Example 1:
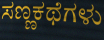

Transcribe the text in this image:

ಸಣ್ಣಕಥೆಗಳು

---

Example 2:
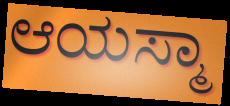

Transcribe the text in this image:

ಆಯಸ್ಮಾ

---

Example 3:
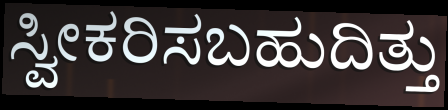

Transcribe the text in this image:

ಸ್ವೀಕರಿಸಬಹುದಿತ್ತು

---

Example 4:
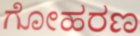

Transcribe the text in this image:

ಗೋಹರಣ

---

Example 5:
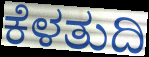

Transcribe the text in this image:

ಕೆಳತುದಿ